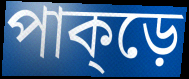
পাক্ড়ে